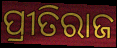
ପ୍ରୀତିରାଜ